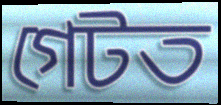
গেটত